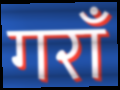
गराँ